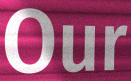
Our